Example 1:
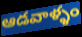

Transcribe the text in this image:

ఆడవాళ్ళం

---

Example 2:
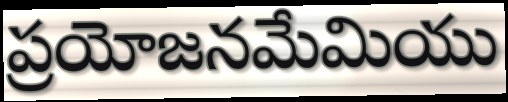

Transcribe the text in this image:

ప్రయోజనమేమియు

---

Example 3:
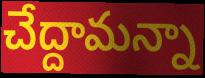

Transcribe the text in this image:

చేద్దామన్నా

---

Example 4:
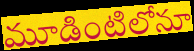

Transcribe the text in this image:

మూడింటిలోనూ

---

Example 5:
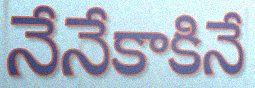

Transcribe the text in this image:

నేనేకాకినే